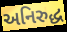
અનિરુદ્ધ